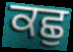
ਕਛੁ